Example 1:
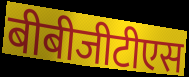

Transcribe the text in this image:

बीबीजीटीएस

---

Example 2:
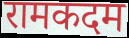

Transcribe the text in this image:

रामकदम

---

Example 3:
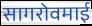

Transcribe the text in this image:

सागरोवमाई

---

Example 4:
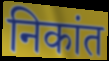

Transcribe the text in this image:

निकांत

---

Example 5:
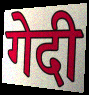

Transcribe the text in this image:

गेदी